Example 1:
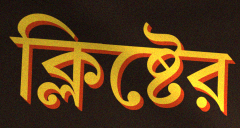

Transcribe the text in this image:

ক্লিষ্টের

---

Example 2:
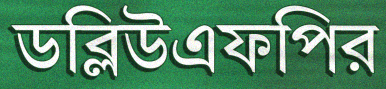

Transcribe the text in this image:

ডব্লিউএফপির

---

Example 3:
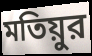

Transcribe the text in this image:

মতিয়ুর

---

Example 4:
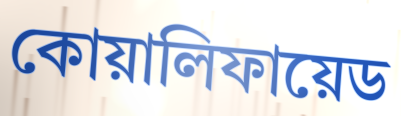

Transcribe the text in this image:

কোয়ালিফায়েড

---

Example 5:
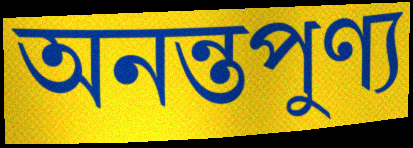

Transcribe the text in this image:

অনন্তপুণ্য